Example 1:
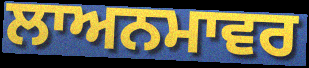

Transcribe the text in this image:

ਲਾਅਨਮਾਵਰ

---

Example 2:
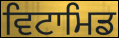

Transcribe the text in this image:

ਵਿਟਾਮਿਡ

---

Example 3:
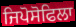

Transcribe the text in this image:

ਜਿਪੋਸੋਫਿਲਾ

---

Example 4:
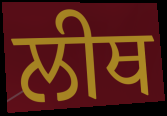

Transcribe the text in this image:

ਲੀਥ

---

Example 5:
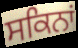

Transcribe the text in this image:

ਸਕਿਨਾਂ